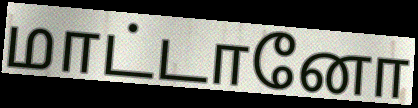
மாட்டானோ